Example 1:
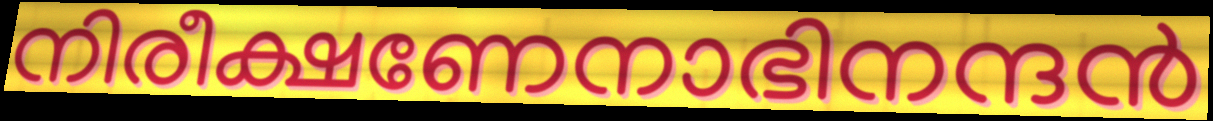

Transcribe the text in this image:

നിരീക്ഷണേനാഭിനന്ദൻ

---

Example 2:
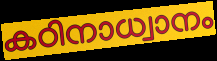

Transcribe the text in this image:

കഠിനാധ്വാനം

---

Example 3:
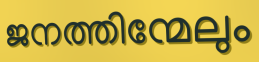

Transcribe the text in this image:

ജനത്തിന്മേലും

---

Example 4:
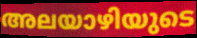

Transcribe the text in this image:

അലയാഴിയുടെ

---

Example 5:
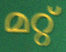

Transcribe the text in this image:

മറ്റ്